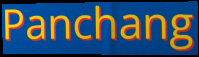
Panchang